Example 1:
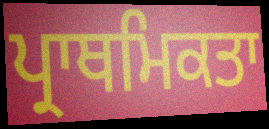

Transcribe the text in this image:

ਪ੍ਰਾਥਮਿਕਤਾ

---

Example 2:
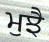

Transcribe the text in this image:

ਮੁਝੈ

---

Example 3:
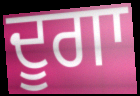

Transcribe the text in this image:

ਦੂਗਾ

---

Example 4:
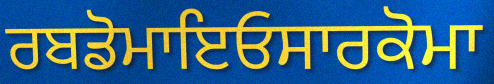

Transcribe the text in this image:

ਰਬਡੋਮਾਇਓਸਾਰਕੋਮਾ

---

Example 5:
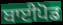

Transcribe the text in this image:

ਬਾਈਪੋਡ